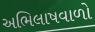
અભિલાષવાળો